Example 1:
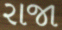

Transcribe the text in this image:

રાજા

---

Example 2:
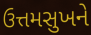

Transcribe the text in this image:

ઉત્તમસુખને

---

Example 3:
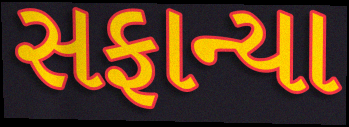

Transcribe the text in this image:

સફાન્યા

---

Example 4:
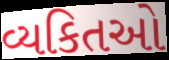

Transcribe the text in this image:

વ્યકિતઓ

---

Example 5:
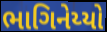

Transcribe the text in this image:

ભાગિનેય્યો